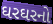
ઘરઘરનો